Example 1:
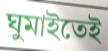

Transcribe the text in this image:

ঘুমাইতেই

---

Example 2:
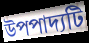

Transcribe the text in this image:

উপপাদ্যটি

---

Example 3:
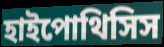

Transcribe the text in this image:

হাইপোথিসিস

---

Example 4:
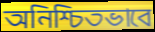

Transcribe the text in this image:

অনিশ্চিতভাবে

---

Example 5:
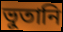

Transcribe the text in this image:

ভুতানি